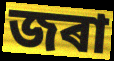
জৰা